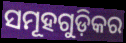
ସମୂହଗୁଡ଼ିକର